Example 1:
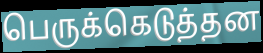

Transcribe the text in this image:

பெருக்கெடுத்தன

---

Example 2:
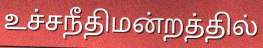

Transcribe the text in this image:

உச்சநீதிமன்றத்தில்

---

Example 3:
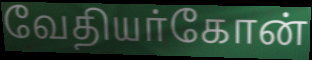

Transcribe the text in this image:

வேதியர்கோன்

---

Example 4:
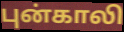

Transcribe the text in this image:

புன்காலி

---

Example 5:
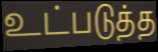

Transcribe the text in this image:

உட்படுத்த